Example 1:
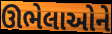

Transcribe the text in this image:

ઊભેલાઓને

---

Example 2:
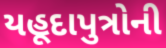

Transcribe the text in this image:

યહૂદાપુત્રોની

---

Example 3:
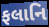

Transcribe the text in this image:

ફલાનિ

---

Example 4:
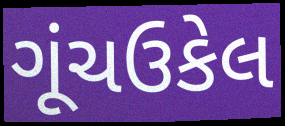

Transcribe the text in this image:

ગૂંચઉકેલ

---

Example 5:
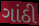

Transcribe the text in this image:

ગાંઠી